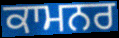
ਕਾਮਨਰ